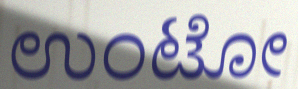
ಉಂಟೋ